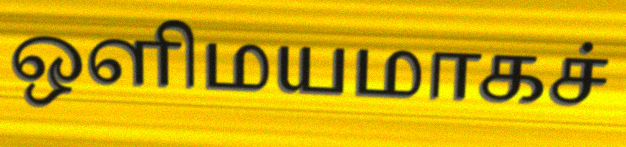
ஒளிமயமாகச்